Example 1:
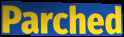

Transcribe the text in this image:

Parched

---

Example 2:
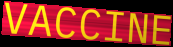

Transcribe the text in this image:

VACCINE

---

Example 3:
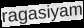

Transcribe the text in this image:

ragasiyam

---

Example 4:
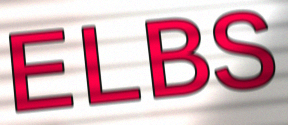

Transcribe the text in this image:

ELBS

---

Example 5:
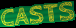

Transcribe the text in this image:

CASTS